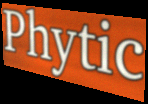
Phytic